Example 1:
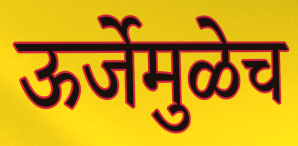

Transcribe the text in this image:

ऊर्जेमुळेच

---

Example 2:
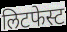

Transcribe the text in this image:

लिटफेस्ट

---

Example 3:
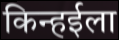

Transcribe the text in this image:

किन्हईला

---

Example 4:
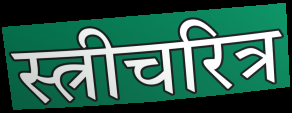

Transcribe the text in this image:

स्त्रीचरित्र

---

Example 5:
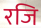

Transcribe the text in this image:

रजि